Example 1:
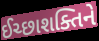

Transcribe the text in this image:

ઈચ્છાશક્તિને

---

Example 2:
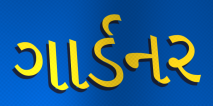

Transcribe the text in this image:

ગાર્ડનર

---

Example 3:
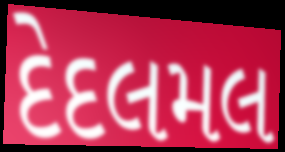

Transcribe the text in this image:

દેદલમલ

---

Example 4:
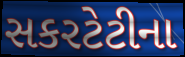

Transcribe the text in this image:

સકરટેટીના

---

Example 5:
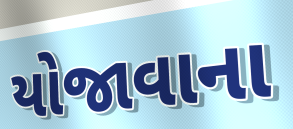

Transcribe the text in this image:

યોજાવાના